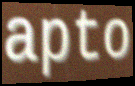
apto